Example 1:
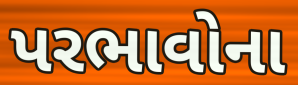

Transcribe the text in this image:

પરભાવોના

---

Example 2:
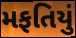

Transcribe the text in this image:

મફતિયું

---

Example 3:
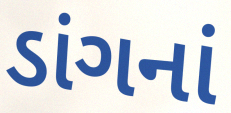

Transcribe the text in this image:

ડાંગનાં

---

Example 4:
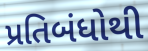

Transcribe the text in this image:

પ્રતિબંધોથી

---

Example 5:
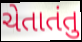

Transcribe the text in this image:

ચેતાતંતુ